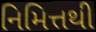
નિમિત્તથી